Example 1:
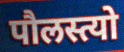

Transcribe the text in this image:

पौलस्त्यो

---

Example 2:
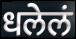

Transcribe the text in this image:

धलेलं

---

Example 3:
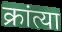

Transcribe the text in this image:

क्रांत्या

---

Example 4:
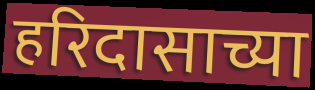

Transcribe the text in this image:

हरिदासाच्या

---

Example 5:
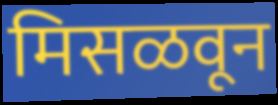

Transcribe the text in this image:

मिसळवून